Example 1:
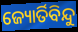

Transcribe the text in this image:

ଜ୍ୟୋର୍ତିବିନ୍ଦୁ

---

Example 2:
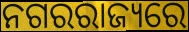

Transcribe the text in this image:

ନଗରରାଜ୍ୟରେ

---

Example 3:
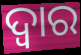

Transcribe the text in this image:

ଦ୍ୱାର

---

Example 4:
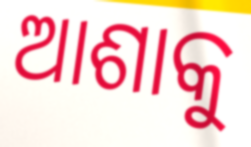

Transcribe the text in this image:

ଆଶାକୁ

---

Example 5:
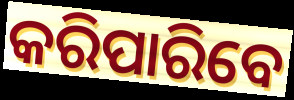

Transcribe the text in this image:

କରିପାରିବେ